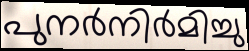
പുനർനിർമിച്ചു